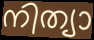
നിത്യാ